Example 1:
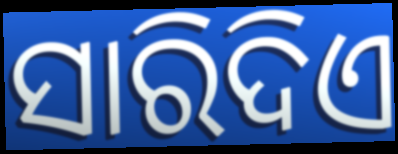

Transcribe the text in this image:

ସାରିଦିଏ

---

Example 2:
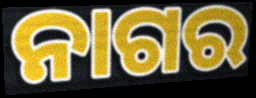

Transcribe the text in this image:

ନାଗର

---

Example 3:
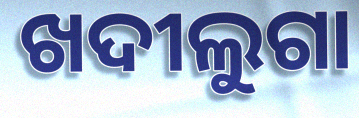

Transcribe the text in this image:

ଖଦୀଲୁଗା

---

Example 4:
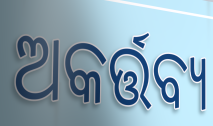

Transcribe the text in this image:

ଅକର୍ତ୍ତବ୍ୟ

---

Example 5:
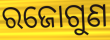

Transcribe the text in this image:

ରଜୋଗୁଣ